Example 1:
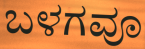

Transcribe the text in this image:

ಬಳಗವೂ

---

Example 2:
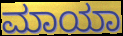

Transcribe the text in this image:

ಮಾಯಾ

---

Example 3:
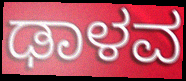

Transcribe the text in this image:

ಢಾಳವ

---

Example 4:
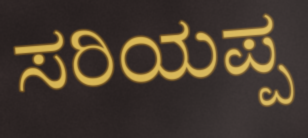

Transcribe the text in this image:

ಸರಿಯಪ್ಪ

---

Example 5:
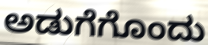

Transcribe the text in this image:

ಅಡುಗೆಗೊಂದು